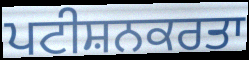
ਪਟੀਸ਼ਨਕਰਤਾ